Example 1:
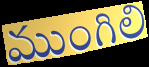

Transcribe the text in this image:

ముంగిలి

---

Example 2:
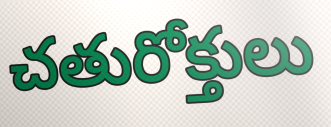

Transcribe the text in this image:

చతురోక్తులు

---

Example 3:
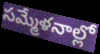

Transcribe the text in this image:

సమ్మేళనాల్లో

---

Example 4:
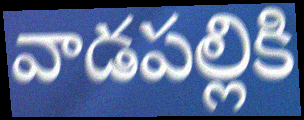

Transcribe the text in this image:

వాడపల్లికి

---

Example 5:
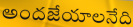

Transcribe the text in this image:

అందజేయాలనేది